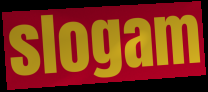
slogam